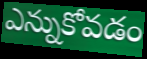
ఎన్నుకోవడం